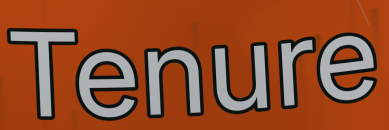
Tenure